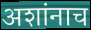
अशांनाच